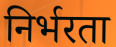
निर्भरता